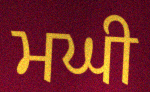
ਮਘੀ